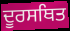
ਦੂਰਸਥਿਤ